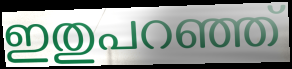
ഇതുപറഞ്ഞ്